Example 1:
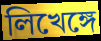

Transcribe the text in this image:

লিখেঙ্গে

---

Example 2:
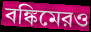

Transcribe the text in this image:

বঙ্কিমেরও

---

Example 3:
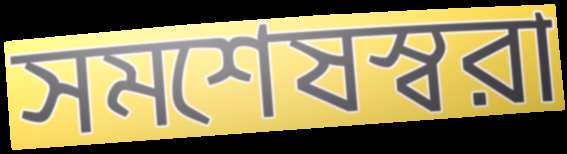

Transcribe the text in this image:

সমশেষস্বরা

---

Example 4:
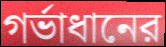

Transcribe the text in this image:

গর্ভাধানের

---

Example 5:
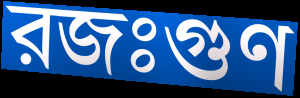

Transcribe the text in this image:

রজঃগুণ